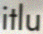
itlu